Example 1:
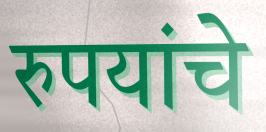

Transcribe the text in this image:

रुपयांचे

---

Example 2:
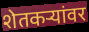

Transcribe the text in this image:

शेतकर्‍यांवर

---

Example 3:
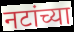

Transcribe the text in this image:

नटांच्या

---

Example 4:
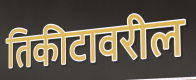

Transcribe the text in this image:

तिकीटावरील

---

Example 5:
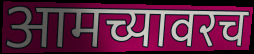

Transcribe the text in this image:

आमच्यावरच